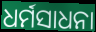
ଧର୍ମସାଧନା